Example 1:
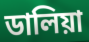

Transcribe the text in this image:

ডালিয়া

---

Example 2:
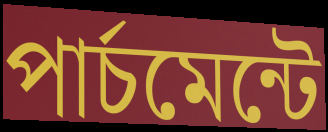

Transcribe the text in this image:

পার্চমেন্টে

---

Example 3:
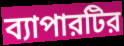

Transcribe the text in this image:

ব্যাপারটির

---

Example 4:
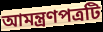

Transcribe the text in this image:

আমন্ত্রণপত্রটি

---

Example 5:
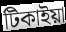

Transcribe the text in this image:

টিকাইয়া